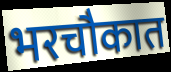
भरचौकात